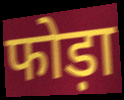
फोड़ा